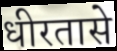
धीरतासे